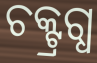
ଚକ୍ଟ୍ରଗ୍ଧ